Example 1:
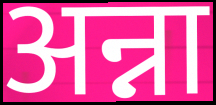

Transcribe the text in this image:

अन्ना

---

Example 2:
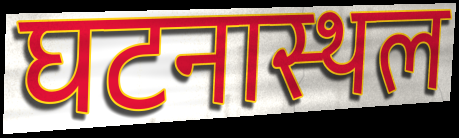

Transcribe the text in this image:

घटनास्थल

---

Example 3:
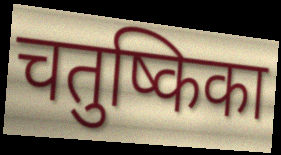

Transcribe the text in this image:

चतुष्किका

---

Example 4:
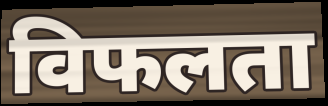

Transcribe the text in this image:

विफलता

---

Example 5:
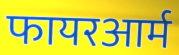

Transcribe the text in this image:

फायरआर्म